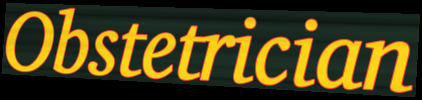
Obstetrician